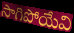
సాగిపోయేవి